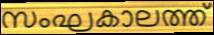
സംഘകാലത്ത്